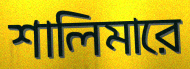
শালিমারে